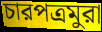
চারপত্রমুরা